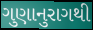
ગુણાનુરાગથી